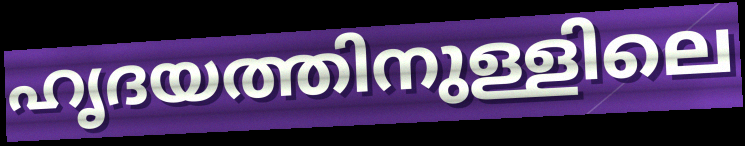
ഹൃദയത്തിനുള്ളിലെ